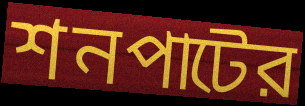
শনপাটের